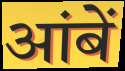
आंबें